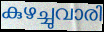
കുഴച്ചുവാരി